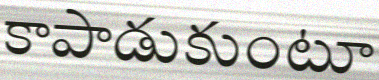
కాపాడుకుంటూ